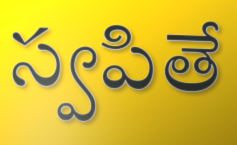
స్వపితే